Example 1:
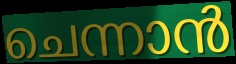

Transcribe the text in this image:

ചെന്നാൻ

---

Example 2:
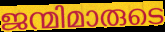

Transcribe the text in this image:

ജന്മിമാരുടെ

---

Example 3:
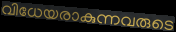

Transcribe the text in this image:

വിധേയരാകുന്നവരുടെ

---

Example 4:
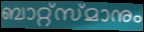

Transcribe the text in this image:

ബാറ്റ്സ്മാനും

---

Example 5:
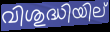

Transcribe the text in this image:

വിശുദ്ധിയില്